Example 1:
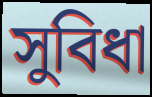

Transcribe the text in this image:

সুবিধা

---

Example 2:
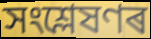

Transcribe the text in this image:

সংশ্লেষণৰ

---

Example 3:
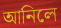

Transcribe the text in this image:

আনিলে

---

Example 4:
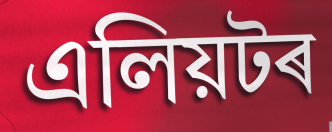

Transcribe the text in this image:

এলিয়টৰ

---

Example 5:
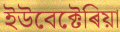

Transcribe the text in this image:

ইউবেক্টেৰিয়া